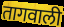
तागवाली